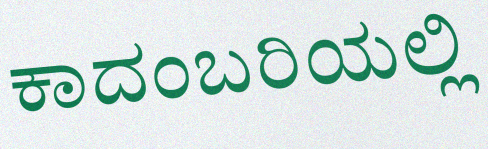
ಕಾದಂಬರಿಯಲ್ಲಿ